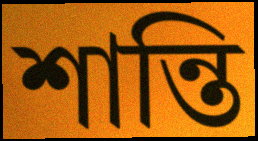
শান্তি